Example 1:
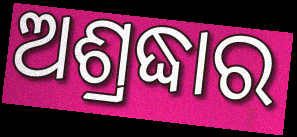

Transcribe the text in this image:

ଅଶ୍ରଦ୍ଧାର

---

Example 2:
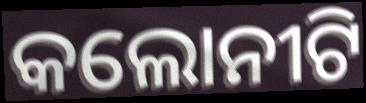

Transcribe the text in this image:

କଲୋନୀଟି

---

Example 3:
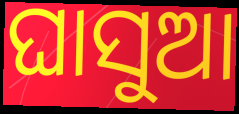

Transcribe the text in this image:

ଘାସୁଆ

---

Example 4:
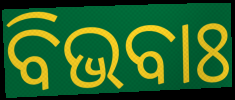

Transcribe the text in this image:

ବିଭବାଃ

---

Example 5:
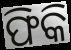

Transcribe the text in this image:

ଫିକି